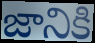
జానికి